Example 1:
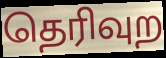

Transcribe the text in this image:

தெரிவுற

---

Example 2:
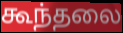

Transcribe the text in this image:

கூந்தலை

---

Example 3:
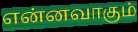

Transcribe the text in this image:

என்னவாகும்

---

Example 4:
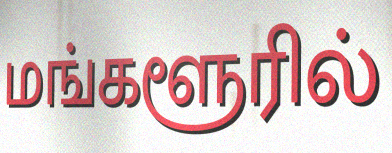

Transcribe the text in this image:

மங்களூரில்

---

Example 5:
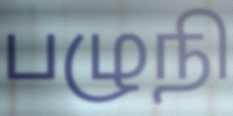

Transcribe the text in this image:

பழுநி